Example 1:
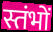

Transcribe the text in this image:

स्तंभों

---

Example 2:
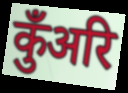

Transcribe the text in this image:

कुँअरि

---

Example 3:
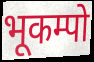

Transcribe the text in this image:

भूकम्पो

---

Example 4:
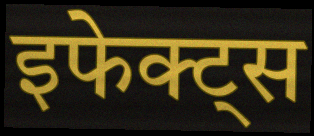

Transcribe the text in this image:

इफेक्‍ट्स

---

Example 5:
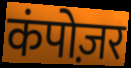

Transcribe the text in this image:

कंपोज़र